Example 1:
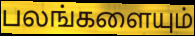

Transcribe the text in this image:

பலங்களையும்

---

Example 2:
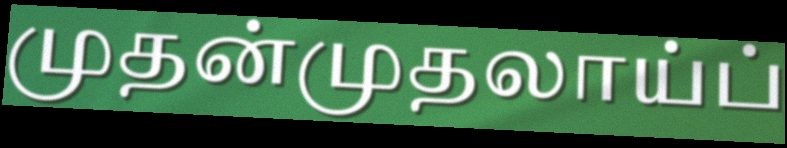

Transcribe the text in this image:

முதன்முதலாய்ப்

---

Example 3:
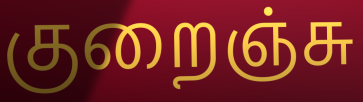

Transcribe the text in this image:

குறைஞ்சு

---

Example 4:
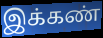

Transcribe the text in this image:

இக்கண்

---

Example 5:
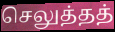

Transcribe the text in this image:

செலுத்தத்